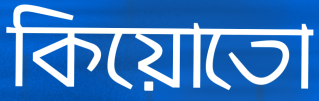
কিয়োতো